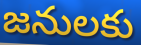
జనులకు